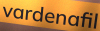
vardenafil